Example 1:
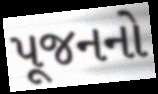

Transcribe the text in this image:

પૂજનનો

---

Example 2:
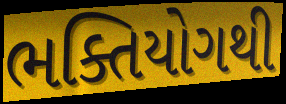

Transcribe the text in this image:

ભક્તિયોગથી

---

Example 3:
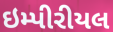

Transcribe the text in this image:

ઇમ્પીરીયલ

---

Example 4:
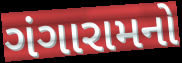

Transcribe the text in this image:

ગંગારામનો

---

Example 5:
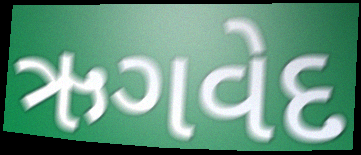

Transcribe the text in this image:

ઋગવેદ